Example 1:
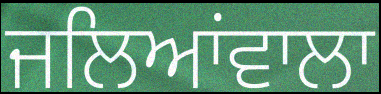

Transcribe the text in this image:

ਜਲਿਆਂਵਾਲਾ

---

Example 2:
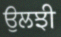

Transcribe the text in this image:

ਉਲਝੀ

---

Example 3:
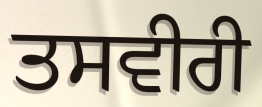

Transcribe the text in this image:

ਤਸਵੀਰੀ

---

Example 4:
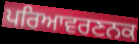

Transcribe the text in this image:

ਪਰਿਆਵਰਣਨਕ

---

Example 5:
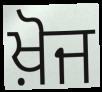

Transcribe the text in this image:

ਖ਼ੋਜ